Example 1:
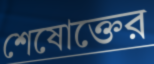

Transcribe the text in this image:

শেষোক্তের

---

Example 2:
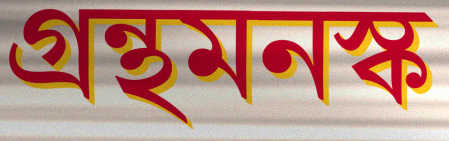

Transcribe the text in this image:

গ্রন্থমনস্ক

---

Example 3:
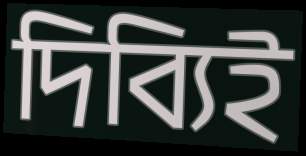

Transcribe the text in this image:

দিব্যিই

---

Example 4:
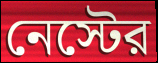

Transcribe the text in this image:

নেস্টের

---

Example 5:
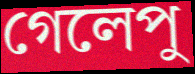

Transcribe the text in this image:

গেলেপু